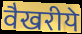
वैखरीये